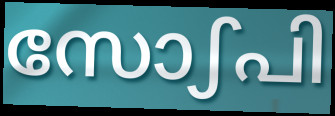
സോഽപി